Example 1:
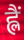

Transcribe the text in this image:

ह्लैं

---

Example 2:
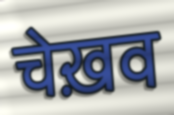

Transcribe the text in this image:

चेख़व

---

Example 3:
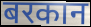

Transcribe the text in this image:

बरकान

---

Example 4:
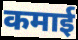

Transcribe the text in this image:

कमाई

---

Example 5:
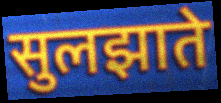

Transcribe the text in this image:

सुलझाते